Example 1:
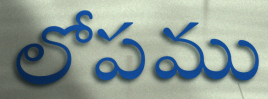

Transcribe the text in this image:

లోపము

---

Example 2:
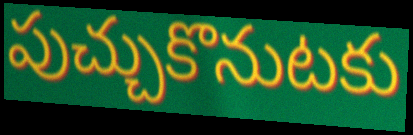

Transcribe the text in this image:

పుచ్చుకొనుటకు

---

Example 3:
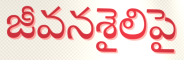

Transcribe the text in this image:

జీవనశైలిపై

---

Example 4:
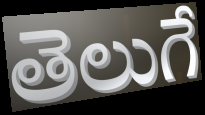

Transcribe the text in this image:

తెలుగే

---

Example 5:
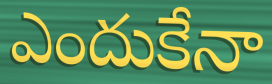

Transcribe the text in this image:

ఎందుకేనా